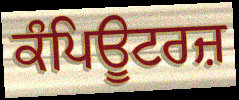
ਕੰਪਿਊਟਰਜ਼